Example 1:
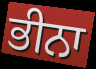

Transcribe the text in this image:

ਭੀਨਾ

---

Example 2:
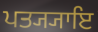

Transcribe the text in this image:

ਪਤ੍ਯ੍ਯਾਇ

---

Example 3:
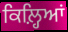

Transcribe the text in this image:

ਕਿਲ਼੍ਹਿਆਂ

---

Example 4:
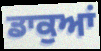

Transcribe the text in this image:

ਡਾਕੁਆਂ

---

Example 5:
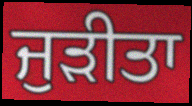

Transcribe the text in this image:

ਜੁੜੀਤਾ